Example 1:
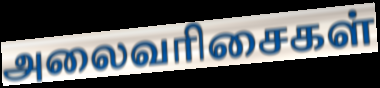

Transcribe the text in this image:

அலைவரிசைகள்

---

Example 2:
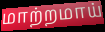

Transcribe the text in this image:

மாற்றமாய்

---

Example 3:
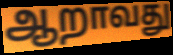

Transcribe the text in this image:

ஆறாவது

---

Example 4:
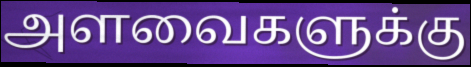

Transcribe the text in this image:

அளவைகளுக்கு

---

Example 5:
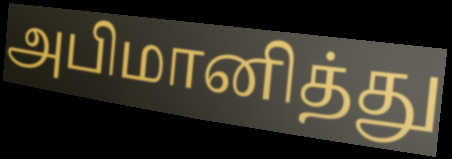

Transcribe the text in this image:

அபிமானித்து